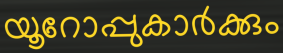
യൂറോപ്പുകാർക്കും